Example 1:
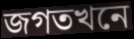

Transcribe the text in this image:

জগতখনে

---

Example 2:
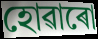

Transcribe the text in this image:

হোৱাৰো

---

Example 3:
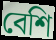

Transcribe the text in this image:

বেশি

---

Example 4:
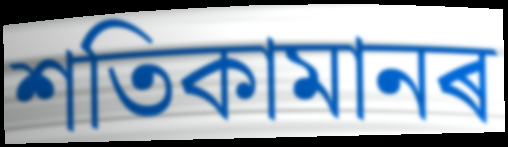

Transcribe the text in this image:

শতিকামানৰ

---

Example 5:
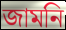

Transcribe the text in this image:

জামনি